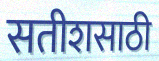
सतीशसाठी